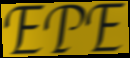
EPE